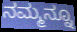
ನಮ್ಮನ್ನೂ